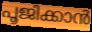
പൂജിക്കാൻ